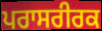
ਪਰਾਸਰੀਰਕ